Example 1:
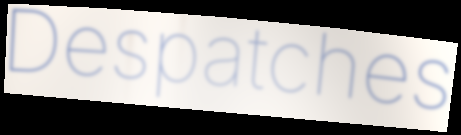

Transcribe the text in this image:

Despatches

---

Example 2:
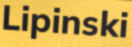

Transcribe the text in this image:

Lipinski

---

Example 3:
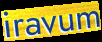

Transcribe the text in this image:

iravum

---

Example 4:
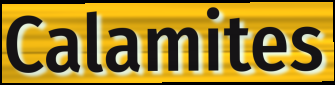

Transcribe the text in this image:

Calamites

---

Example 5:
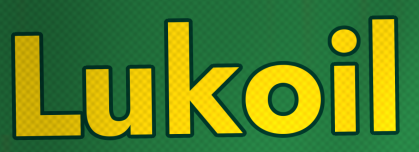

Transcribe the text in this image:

Lukoil